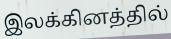
இலக்கினத்தில்